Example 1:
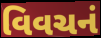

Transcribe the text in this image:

વિવચનં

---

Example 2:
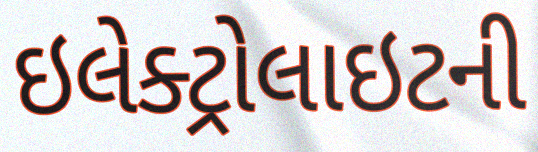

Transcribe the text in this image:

ઇલેક્ટ્રોલાઇટની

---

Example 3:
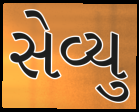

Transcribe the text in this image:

સેવ્યુ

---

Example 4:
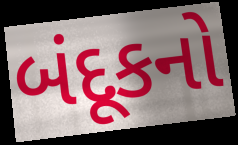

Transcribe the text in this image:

બંદૂકનો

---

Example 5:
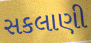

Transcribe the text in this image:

સકલાણી